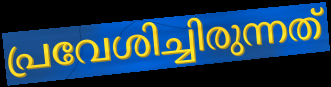
പ്രവേശിച്ചിരുന്നത്